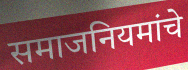
समाजनियमांचे